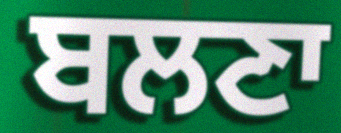
ਬਲਣਾ